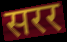
सरर